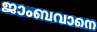
ജാംബവാനെ